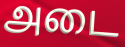
அடை